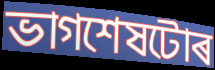
ভাগশেষটোৰ